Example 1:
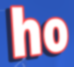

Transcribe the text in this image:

ho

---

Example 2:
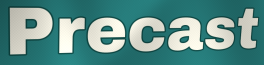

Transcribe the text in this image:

Precast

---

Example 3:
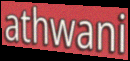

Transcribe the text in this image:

athwani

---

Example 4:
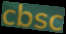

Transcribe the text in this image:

cbsc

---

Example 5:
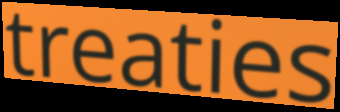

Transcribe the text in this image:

treaties